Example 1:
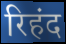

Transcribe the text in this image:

रिहंद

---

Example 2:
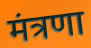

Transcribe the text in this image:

मंत्रणा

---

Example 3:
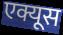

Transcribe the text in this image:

एक्यूस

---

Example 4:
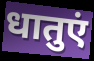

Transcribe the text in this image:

धातुएं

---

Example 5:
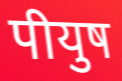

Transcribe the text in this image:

पीयुष